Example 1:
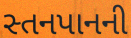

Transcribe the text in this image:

સ્તનપાનની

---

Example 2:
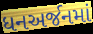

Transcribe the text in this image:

ધનઅર્જનમાં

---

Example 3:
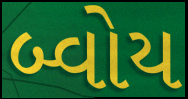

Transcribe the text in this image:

બ્વોય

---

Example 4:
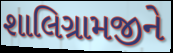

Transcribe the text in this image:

શાલિગ્રામજીને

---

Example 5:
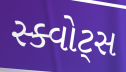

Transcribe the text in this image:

સ્ક્વોટ્સ